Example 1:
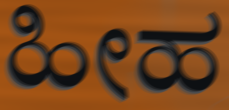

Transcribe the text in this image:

ಹೀಹ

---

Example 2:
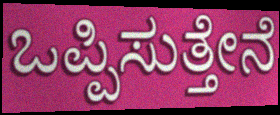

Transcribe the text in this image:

ಒಪ್ಪಿಸುತ್ತೇನೆ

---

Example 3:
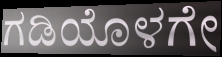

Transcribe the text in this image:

ಗಡಿಯೊಳಗೇ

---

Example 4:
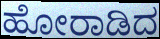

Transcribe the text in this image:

ಹೋರಾಡಿದ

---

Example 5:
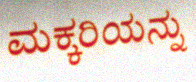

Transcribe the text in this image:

ಮಕ್ಕರಿಯನ್ನು